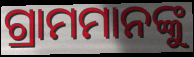
ଗ୍ରାମମାନଙ୍କୁ